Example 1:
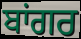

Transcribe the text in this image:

ਬਾਂਗਰ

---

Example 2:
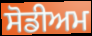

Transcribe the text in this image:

ਸੋਡੀਅਮ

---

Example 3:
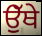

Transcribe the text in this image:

ਉੁੱਥੇ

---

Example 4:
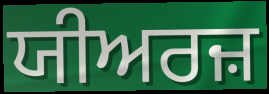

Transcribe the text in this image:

ਯੀਅਰਜ਼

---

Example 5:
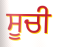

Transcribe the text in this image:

ਸੂਚੀ